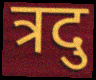
त्रदु